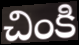
చింకి